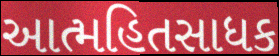
આત્મહિતસાધક